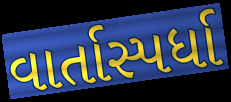
વાર્તાસ્પર્ધા